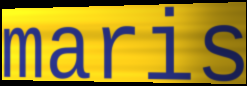
maris